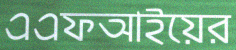
এএফআইয়ের